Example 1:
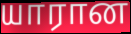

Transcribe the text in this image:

யாரான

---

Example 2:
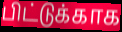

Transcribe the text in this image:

பிட்டுக்காக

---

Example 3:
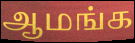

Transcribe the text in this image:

ஆமங்க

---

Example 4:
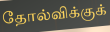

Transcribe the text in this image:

தோல்விக்குக்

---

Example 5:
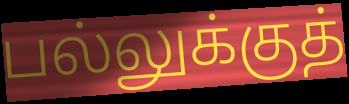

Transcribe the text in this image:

பல்லுக்குத்